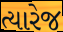
ત્યારેજ